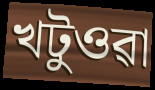
খটুওৱা